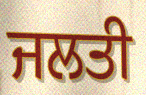
ਜਲਤੀ